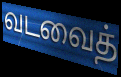
வடவைத்